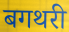
बगथरी